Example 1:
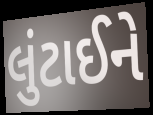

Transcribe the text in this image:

લુંટાઈને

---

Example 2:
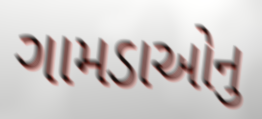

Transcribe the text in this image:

ગામડાઓનુ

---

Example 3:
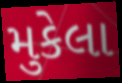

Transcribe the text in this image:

મુકેલા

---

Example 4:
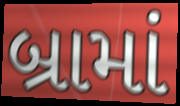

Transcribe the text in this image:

બ્રામાં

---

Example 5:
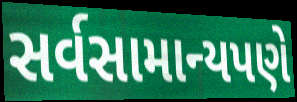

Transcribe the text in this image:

સર્વસામાન્યપણે